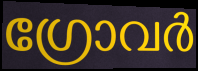
ഗ്രോവർ